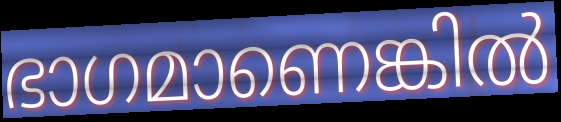
ഭാഗമാണെങ്കിൽ